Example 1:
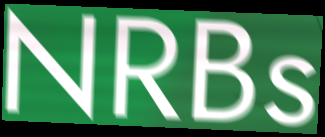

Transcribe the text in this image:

NRBs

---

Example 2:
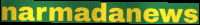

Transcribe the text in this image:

narmadanews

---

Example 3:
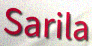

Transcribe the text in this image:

Sarila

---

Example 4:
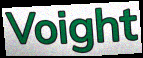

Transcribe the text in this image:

Voight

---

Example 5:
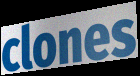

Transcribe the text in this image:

clones